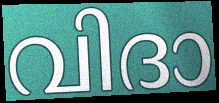
വിദാ